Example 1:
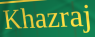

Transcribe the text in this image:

Khazraj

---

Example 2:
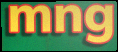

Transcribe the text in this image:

mng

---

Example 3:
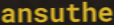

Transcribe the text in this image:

ansuthe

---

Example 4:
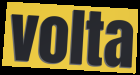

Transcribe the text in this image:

volta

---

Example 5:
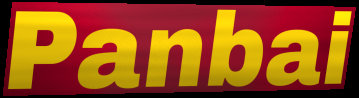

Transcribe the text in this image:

Panbai